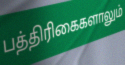
பத்திரிகைகளாலும்